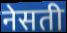
नेसती